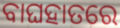
ବାଘହାତରେ